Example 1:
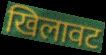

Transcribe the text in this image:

खिलावट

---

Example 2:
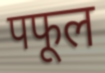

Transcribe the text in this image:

पफूल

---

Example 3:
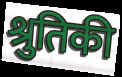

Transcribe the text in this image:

श्रुतिकी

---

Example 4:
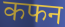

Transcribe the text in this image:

कफन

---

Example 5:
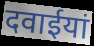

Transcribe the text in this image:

दवाईयां